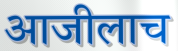
आजीलाच